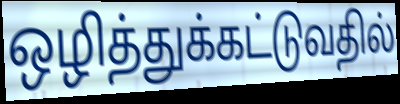
ஒழித்துக்கட்டுவதில்